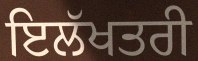
ਇਲੱਖਤਰੀ